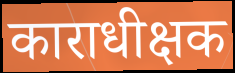
काराधीक्षक